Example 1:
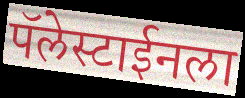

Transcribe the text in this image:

पॅलेस्टाईनला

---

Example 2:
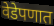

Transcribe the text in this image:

वेडेपणात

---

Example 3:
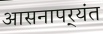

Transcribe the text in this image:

आसनापर्यंत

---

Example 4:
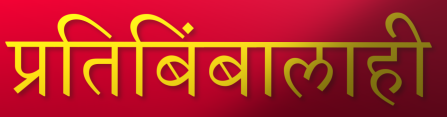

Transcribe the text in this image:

प्रतिबिंबालाही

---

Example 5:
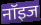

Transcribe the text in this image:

नॉइज